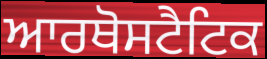
ਆਰਥੋਸਟੈਟਿਕ